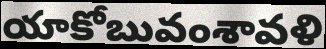
యాకోబువంశావళి